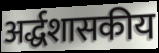
अर्द्धशासकीय